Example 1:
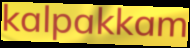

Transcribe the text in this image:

kalpakkam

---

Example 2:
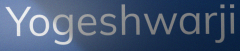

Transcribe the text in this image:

Yogeshwarji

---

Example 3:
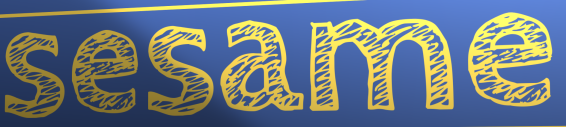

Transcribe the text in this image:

sesame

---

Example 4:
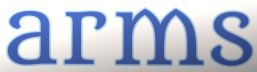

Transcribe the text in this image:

arms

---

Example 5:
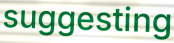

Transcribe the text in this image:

suggesting